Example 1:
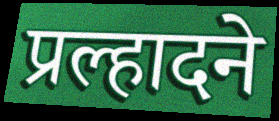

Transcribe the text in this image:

प्रल्हादने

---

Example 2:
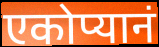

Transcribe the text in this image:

एकोप्यानं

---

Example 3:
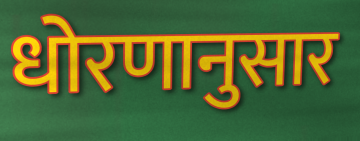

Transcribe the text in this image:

धोरणानुसार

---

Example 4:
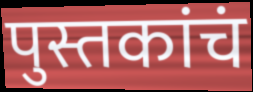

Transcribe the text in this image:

पुस्तकांचं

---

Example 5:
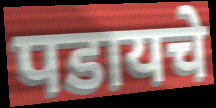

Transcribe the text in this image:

पडायचे